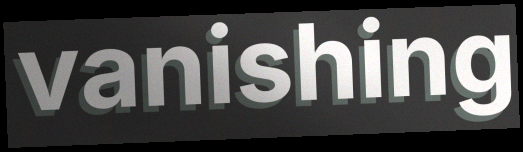
vanishing